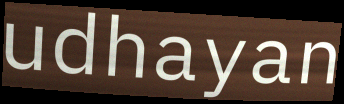
udhayan